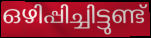
ഒഴിപ്പിച്ചിട്ടുണ്ട്